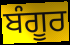
ਬੰਗੂਰ